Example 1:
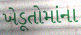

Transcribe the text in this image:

ખેડૂતોમાંના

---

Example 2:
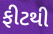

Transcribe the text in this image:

ફીટથી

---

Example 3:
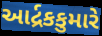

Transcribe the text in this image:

આર્દ્રકકુમારે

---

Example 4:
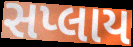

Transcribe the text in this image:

સપ્લાય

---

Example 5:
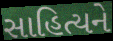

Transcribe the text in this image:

સાહિત્યને